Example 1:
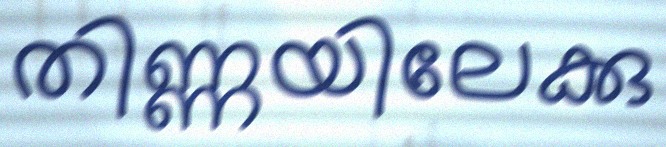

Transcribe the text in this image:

തിണ്ണയിലേക്കു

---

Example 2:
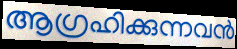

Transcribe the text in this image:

ആഗ്രഹിക്കുന്നവൻ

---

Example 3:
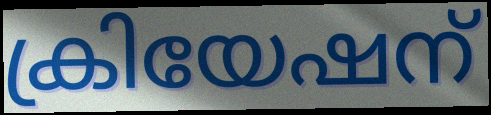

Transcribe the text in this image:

ക്രിയേഷന്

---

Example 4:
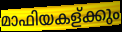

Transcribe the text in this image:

മാഫിയകള്ക്കും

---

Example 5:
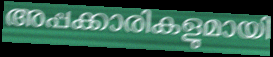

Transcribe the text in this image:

അപ്പക്കാരികളുമായി